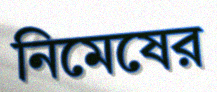
নিমেষের